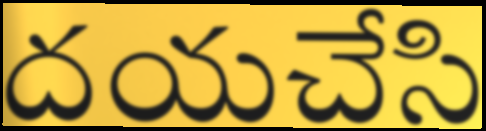
దయచేసి